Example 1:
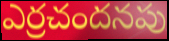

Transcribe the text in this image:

ఎర్రచందనపు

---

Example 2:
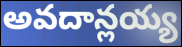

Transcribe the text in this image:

అవదాన్లయ్య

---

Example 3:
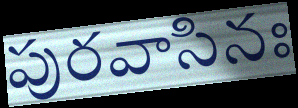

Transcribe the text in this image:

పురవాసినః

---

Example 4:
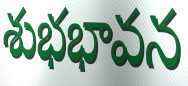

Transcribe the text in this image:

శుభభావన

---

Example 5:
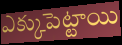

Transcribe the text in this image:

ఎక్కుపెట్టాయి